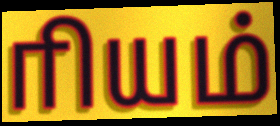
ரியம்